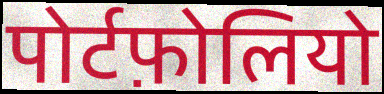
पोर्टफ़ोलियो